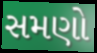
સમણો